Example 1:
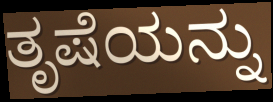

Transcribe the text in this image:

ತೃಷೆಯನ್ನು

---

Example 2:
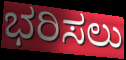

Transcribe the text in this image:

ಭರಿಸಲು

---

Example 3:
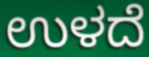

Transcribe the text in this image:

ಉಳದೆ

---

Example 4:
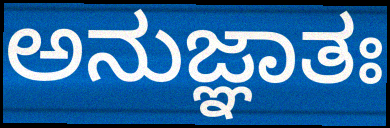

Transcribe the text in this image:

ಅನುಜ್ಞಾತಃ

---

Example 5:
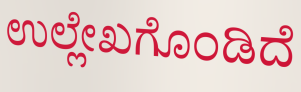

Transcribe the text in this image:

ಉಲ್ಲೇಖಗೊಂಡಿದೆ